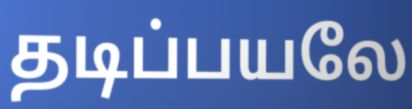
தடிப்பயலே